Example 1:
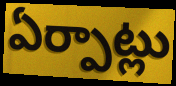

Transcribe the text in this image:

ఏర్పాట్లు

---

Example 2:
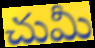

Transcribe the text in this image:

చుమీ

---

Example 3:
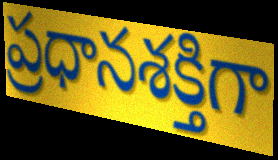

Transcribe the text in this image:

ప్రధానశక్తిగా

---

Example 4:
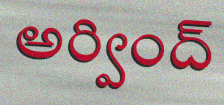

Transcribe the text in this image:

అర్వింద్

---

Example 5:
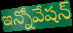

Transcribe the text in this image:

ఇన్నోవేషన్